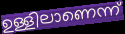
ഉള്ളിലാണെന്ന്